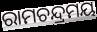
ରାମଚନ୍ଦ୍ରମୟ